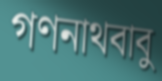
গণনাথবাবু